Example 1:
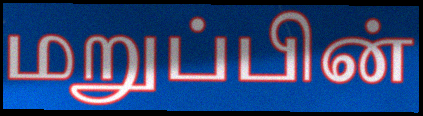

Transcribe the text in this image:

மறுப்பின்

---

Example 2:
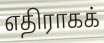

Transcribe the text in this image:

எதிராகக்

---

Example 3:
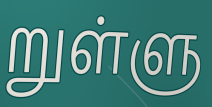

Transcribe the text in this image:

றுள்ளு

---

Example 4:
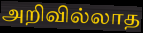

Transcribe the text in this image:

அறிவில்லாத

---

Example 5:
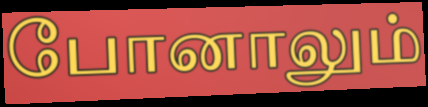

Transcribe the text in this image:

போனாலும்